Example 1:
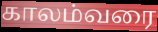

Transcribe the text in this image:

காலம்வரை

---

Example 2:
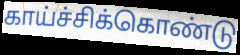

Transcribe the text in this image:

காய்ச்சிக்கொண்டு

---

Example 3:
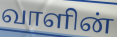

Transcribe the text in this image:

வாளின்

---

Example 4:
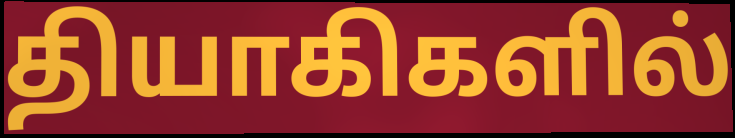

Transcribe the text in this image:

தியாகிகளில்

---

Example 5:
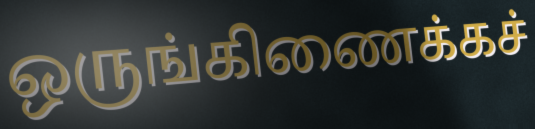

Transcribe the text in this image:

ஒருங்கிணைக்கச்